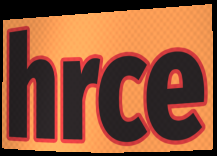
hrce